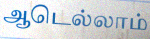
ஆடெல்லாம்